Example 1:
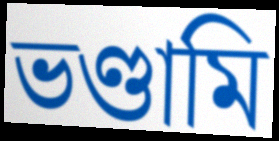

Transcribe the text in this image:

ভণ্ডামি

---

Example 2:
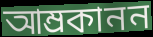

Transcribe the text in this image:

আম্রকানন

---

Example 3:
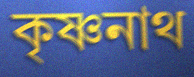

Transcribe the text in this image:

কৃষ্ণনাথ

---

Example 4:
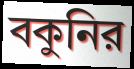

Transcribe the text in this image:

বকুনির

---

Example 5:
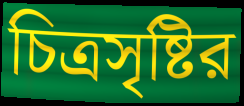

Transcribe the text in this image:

চিত্রসৃষ্টির